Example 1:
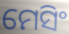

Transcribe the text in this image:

ମେସିଂ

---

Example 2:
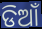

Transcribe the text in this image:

ଡିଆଁ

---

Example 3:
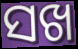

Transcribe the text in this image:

ସଖ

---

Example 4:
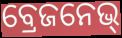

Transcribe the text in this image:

ବ୍ରେଜନେଭ୍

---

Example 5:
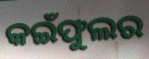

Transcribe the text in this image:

କଇଁଫୁଲର